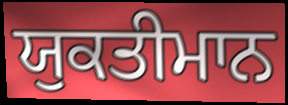
ਯੁਕਤੀਮਾਨ